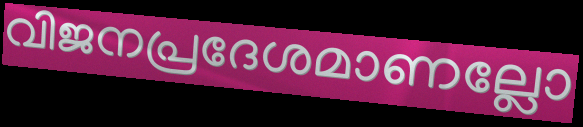
വിജനപ്രദേശമാണല്ലോ